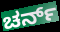
ಚರ್ನ್